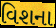
વિશના